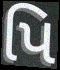
પિ